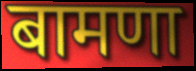
बामणा